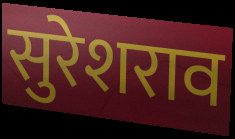
सुरेशराव